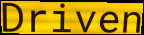
Driven